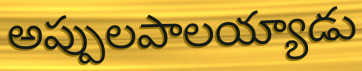
అప్పులపాలయ్యాడు